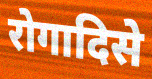
रोगादिसे